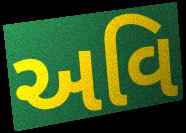
અવિ